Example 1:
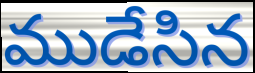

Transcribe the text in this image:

ముడేసిన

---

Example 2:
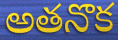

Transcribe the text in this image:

అతనొక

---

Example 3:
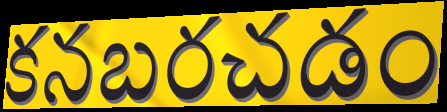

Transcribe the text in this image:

కనబరచడం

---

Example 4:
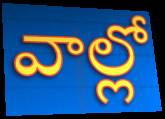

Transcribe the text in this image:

వాల్లో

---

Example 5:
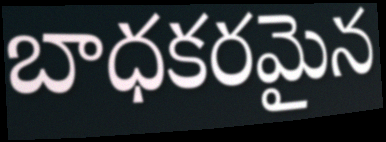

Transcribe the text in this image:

బాధకరమైన